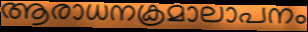
ആരാധനക്രമാലാപനം